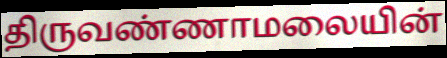
திருவண்ணாமலையின்